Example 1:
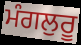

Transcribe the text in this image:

ਮੰਗਲੁਰੂ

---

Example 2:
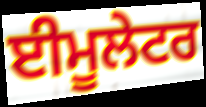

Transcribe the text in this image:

ਈਮੂਲੇਟਰ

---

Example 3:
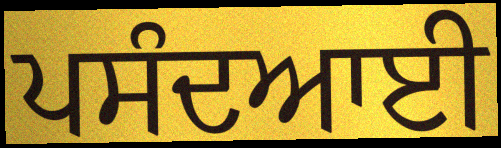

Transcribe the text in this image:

ਪਸੰਦਆਈ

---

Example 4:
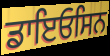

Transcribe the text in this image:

ਡਾਇਓਸਿਨ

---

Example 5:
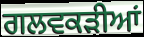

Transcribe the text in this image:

ਗਲਵਕੜੀਆਂ